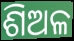
ଶିଅଳ